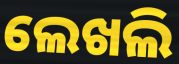
ଲେଖଲି